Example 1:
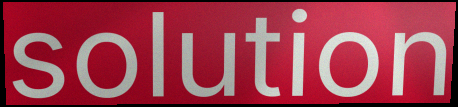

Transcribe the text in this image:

solution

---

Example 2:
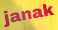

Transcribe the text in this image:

janak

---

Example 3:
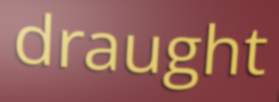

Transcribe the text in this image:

draught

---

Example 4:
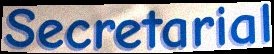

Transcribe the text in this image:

Secretarial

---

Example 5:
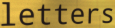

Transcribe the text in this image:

letters